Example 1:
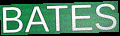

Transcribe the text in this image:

BATES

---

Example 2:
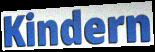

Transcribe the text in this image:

Kindern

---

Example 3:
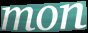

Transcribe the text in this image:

mon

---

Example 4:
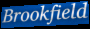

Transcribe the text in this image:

Brookfield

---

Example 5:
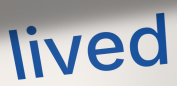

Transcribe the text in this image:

lived